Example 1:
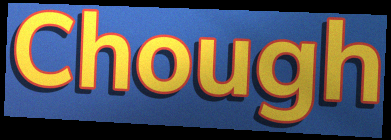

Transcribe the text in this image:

Chough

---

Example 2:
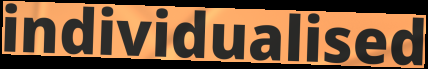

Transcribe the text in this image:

individualised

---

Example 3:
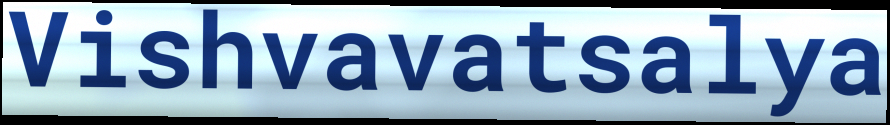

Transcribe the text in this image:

Vishvavatsalya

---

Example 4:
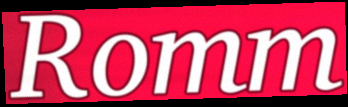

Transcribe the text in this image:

Romm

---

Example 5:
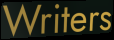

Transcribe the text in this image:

Writers